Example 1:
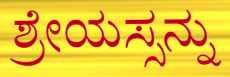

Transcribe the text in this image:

ಶ್ರೇಯಸ್ಸನ್ನು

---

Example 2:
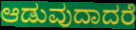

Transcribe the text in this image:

ಆಡುವುದಾದರೆ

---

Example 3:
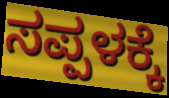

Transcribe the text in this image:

ಸಪ್ಪಳಕ್ಕೆ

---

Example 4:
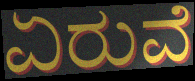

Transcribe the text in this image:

ಏರುವೆ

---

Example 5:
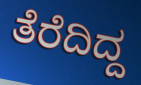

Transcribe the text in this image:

ತೆರೆದಿದ್ದ